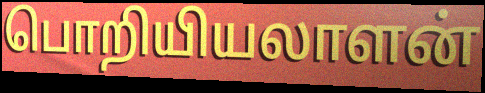
பொறியியலாளன்